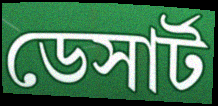
ডেসার্ট